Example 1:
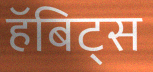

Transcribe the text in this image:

हॅबिट्स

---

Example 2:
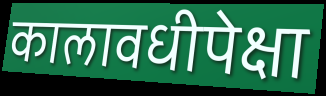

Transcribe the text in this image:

कालावधीपेक्षा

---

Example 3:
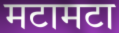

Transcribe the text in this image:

मटामटा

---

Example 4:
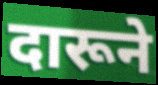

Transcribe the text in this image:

दारूने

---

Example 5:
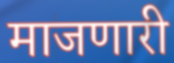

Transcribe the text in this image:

माजणारी